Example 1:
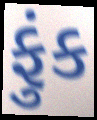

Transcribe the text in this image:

ફુંક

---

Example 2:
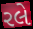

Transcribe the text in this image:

રલે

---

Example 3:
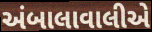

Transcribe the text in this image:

અંબાલાવાલીએ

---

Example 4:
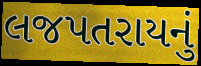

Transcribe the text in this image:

લજપતરાયનું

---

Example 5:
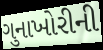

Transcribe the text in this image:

ગુનાખોરીની